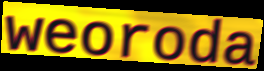
weoroda